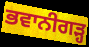
ਭਵਾਨੀਗੜ੍ਹ